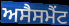
ਅਸੈਸਮੈਂਟ